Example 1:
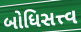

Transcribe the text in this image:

બોધિસત્ત્વ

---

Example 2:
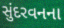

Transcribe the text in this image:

સુંદરવનના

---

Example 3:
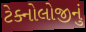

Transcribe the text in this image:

ટેક્નોલોજીનું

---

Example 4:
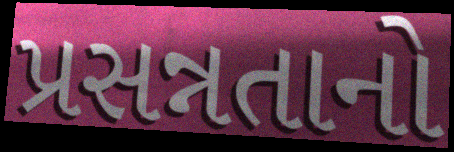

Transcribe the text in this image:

પ્રસન્નતાનો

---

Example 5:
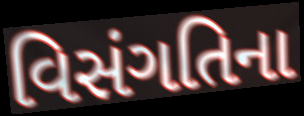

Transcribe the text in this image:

વિસંગતિના